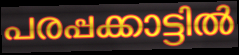
പരപ്പക്കാട്ടിൽ